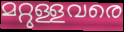
മറ്റുള്ളവരെ